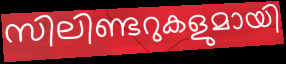
സിലിണ്ടറുകളുമായി